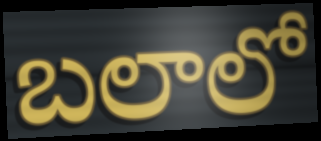
బలాలో